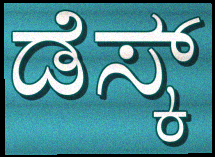
ಡೆಸ್ಕ್